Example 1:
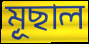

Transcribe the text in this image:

মূছাল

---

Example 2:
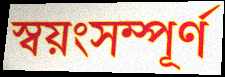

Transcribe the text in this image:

স্বয়ংসম্পূৰ্ণ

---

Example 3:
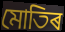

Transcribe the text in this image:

মোতিৰ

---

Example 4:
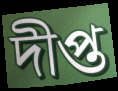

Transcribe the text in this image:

দীপ্ত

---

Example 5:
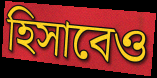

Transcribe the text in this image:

হিসাবেও